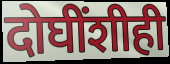
दोघींशीही